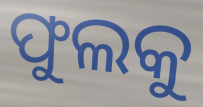
ଫୁଲକୁ